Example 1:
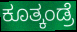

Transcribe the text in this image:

ಕೂತ್ಕಂಡ್ರೆ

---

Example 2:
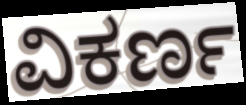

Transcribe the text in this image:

ವಿಕರ್ಣ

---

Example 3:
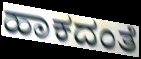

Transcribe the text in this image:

ಹಾಕದಂತೆ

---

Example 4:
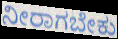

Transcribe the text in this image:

ನೀರಾಗಬೇಕು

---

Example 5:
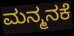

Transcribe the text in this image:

ಮನ್ಮನಕೆ